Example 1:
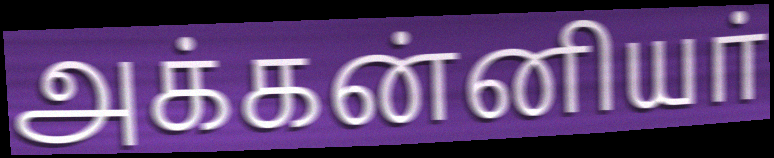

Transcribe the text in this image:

அக்கன்னியர்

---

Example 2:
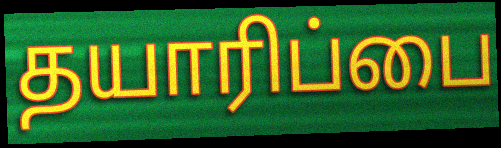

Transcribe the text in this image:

தயாரிப்பை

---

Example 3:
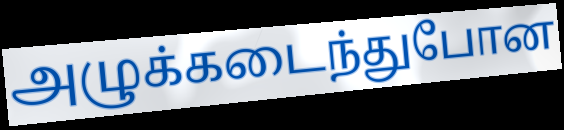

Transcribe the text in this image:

அழுக்கடைந்துபோன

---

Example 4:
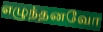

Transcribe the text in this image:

எழுந்தனவோ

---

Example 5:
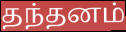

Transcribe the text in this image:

தந்தனம்